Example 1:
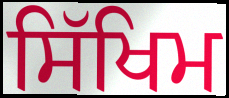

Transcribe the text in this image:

ਸਿੱਖਿਮ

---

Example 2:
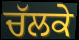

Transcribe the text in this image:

ਚੱਲਕੇ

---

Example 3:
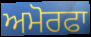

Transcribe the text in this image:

ਅਮੋਰਫਾ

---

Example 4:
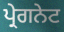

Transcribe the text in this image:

ਪ੍ਰੇਗਨੇਟ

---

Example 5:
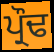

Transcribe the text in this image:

ਪ੍ਰੌਢ